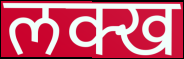
लक्ख